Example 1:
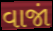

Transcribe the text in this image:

વાજાં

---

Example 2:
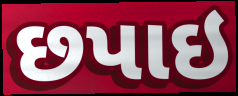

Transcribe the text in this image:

છપાઇ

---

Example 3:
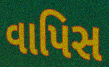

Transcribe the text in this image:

વાપિસ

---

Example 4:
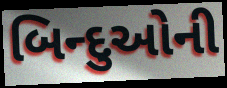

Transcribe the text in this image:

બિન્દુઓની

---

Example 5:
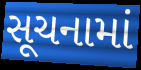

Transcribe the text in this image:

સૂચનામાં